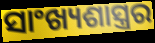
ସାଂଖ୍ୟଶାସ୍ତ୍ରର